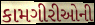
કામગીરીઓની